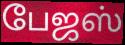
பேஜஸ்